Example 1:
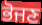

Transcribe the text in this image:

ਭੋਜਣ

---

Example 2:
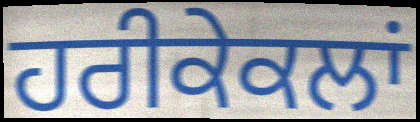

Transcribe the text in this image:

ਹਰੀਕੇਕਲਾਂ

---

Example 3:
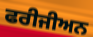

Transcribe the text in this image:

ਫਰੀਜੀਅਨ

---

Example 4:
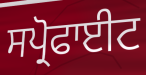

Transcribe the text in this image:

ਸਪ੍ਰੋਫਾਈਟ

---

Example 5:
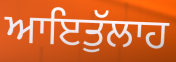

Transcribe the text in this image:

ਆਇਤੁੱਲਾਹ